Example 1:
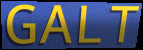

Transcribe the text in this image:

GALT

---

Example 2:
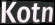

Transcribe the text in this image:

Kotn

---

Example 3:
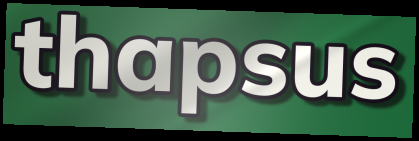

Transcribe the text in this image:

thapsus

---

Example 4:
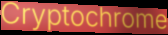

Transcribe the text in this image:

Cryptochrome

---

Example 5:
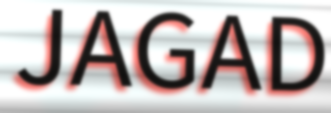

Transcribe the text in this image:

JAGAD